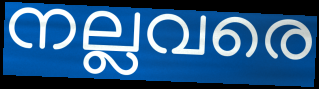
നല്ലവരെ